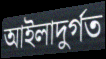
আইলাদুর্গত